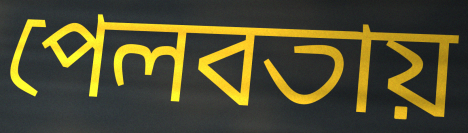
পেলবতায়